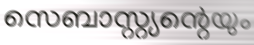
സെബാസ്റ്റ്യന്റെയും